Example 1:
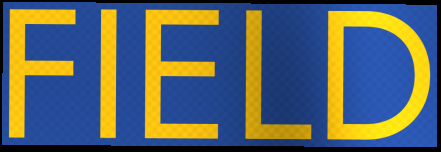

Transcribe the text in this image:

FIELD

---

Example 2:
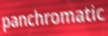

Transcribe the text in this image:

panchromatic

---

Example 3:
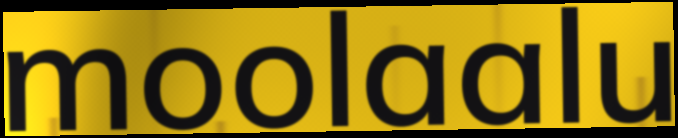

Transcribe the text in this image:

moolaalu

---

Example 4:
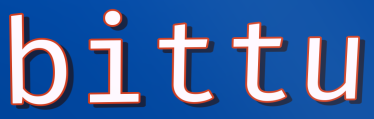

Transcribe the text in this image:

bittu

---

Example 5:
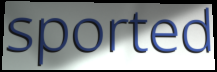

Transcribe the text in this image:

sported